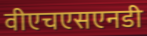
वीएचएसएनडी